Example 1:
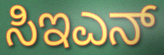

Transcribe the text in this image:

ಸಿಇಎನ್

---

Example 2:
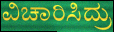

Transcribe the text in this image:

ವಿಚಾರಿಸಿದ್ರು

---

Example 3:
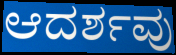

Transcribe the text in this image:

ಆದರ್ಶವು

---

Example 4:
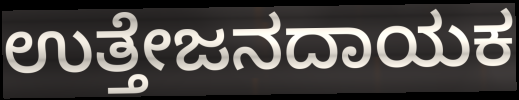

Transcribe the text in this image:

ಉತ್ತೇಜನದಾಯಕ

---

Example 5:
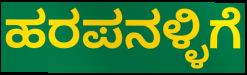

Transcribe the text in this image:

ಹರಪನಳ್ಳಿಗೆ